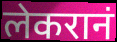
लेकरानं